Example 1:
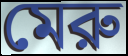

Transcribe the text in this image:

মেরু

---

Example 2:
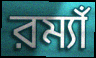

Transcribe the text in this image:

রম্যাঁ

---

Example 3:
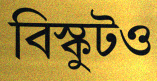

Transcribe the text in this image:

বিস্কুটও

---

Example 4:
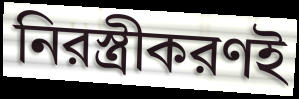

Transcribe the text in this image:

নিরস্ত্রীকরণই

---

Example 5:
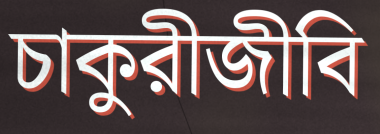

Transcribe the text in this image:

চাকুরীজীবি